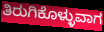
ತಿರುಗಿಕೊಳ್ಳುವಾಗ